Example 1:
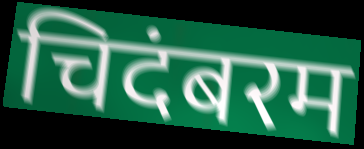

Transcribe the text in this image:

चिदंबरम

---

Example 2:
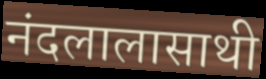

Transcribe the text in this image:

नंदलालासाथी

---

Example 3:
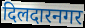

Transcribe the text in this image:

दिलदारनगर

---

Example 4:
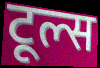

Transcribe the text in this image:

टूल्स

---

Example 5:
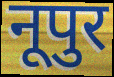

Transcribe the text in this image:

नूपुर